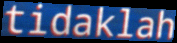
tidaklah